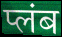
प्लंब